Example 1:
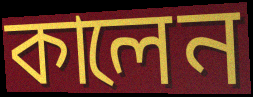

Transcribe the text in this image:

কালেন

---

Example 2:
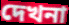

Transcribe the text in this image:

দেখনা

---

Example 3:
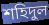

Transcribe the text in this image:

শহিদুল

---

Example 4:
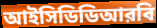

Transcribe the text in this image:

আইসিডিডিআরবি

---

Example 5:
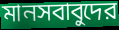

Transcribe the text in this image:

মানসবাবুদের